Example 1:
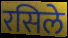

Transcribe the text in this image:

रसिले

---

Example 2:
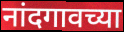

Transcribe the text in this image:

नांदगावच्या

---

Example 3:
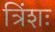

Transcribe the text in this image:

त्रिंशः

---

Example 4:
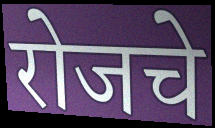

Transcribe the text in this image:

रोजचे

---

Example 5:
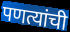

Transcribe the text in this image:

पणत्यांची